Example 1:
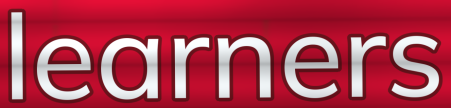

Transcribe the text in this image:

learners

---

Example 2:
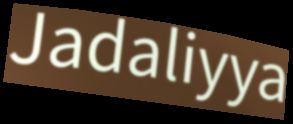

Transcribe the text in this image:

Jadaliyya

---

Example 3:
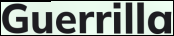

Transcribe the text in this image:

Guerrilla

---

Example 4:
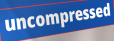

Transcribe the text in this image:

uncompressed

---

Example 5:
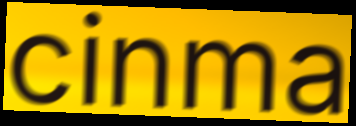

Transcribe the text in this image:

cinma